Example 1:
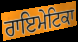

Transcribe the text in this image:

ਰਾਇਮੇਟਿਕਾ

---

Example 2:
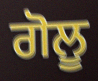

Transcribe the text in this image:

ਗੋਲੂ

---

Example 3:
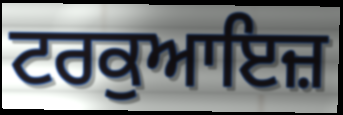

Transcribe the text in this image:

ਟਰਕੁਆਇਜ਼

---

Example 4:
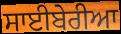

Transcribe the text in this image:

ਸਾਈਬੇਰੀਆ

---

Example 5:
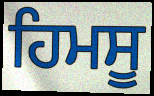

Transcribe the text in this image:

ਹਿਮਸੂ